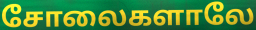
சோலைகளாலே